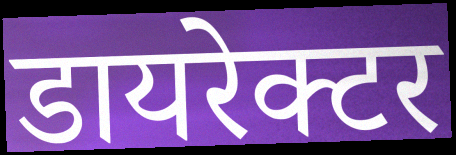
डायरेक्टर